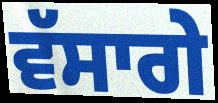
ਵੱਸਾਗੇ